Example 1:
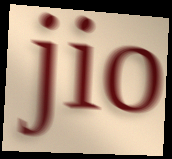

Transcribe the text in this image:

jio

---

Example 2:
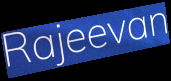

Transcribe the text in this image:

Rajeevan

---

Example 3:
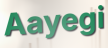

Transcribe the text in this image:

Aayegi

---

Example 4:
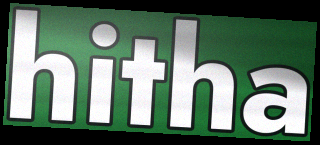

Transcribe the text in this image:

hitha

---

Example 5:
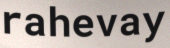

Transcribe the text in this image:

rahevay